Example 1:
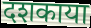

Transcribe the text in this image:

दशकाया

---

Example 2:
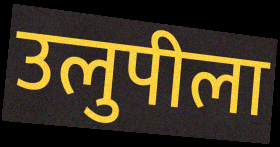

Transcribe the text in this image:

उलुपीला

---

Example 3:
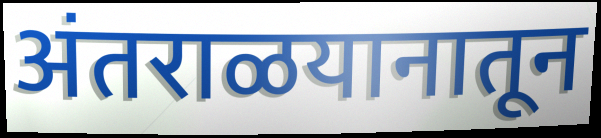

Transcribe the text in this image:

अंतराळयानातून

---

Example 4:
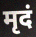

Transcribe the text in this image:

मृदं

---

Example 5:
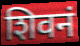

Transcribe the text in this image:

शिवनं